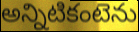
అన్నిటికంటెను